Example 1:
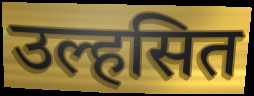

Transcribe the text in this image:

उल्हसित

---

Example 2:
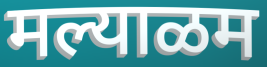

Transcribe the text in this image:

मल्याळम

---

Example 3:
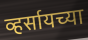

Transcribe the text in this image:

व्हर्सायच्या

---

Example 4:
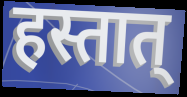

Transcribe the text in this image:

हस्तात्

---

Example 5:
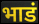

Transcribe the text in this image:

भाडं